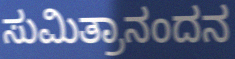
ಸುಮಿತ್ರಾನಂದನ